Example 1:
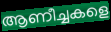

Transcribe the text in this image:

ആണീച്ചകളെ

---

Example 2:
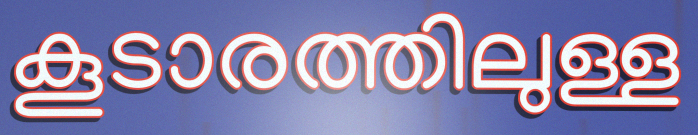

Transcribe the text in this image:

കൂടാരത്തിലുള്ള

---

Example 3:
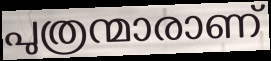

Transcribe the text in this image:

പുത്രന്മാരാണ്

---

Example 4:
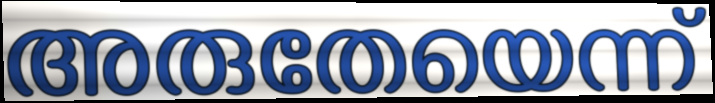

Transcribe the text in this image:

അരുതേയെന്ന്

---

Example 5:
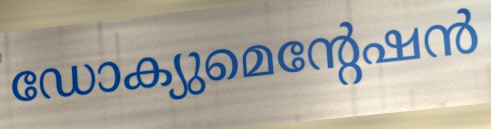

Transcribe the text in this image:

ഡോക്യുമെന്റേഷൻ